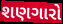
શણગારો